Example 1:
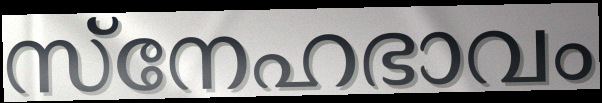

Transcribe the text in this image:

സ്നേഹഭാവം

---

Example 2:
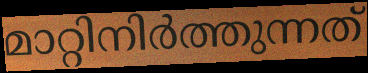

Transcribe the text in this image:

മാറ്റിനിർത്തുന്നത്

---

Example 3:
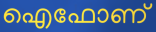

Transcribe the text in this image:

ഐഫോണ്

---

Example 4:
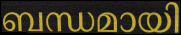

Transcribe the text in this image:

ബന്ധമായി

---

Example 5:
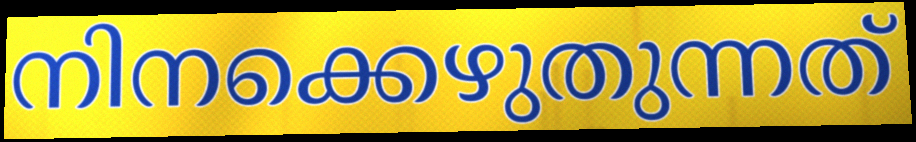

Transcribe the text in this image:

നിനക്കെഴുതുന്നത്